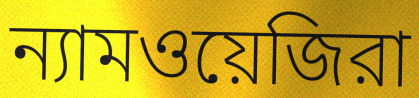
ন্যামওয়েজিরা